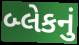
બ્લેકનું